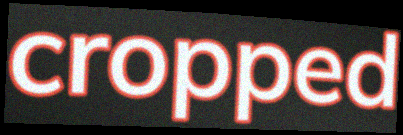
cropped